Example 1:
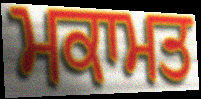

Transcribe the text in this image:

ਮਕਾਮਤ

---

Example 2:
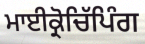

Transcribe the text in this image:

ਮਾਈਕ੍ਰੋਚਿੱਪਿੰਗ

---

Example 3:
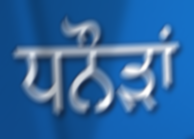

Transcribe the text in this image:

ਧਨੌੜਾਂ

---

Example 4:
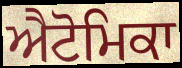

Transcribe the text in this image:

ਐਟੋਮਿਕਾ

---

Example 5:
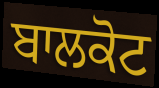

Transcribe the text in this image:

ਬਾਲਕੋਟ